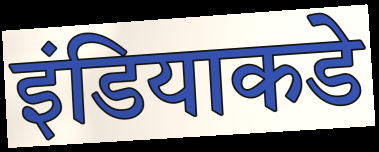
इंडियाकडे